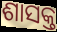
ଶାସକ୍ତ